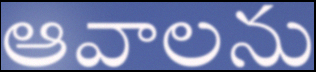
ఆవాలను